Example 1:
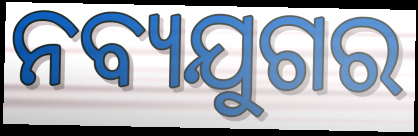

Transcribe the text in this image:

ନବ୍ୟଯୁଗର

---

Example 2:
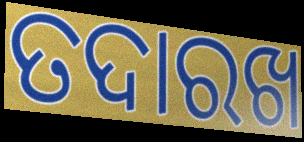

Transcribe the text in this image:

ତଦାରଖ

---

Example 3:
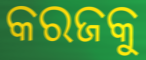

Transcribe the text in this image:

କରଜକୁ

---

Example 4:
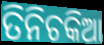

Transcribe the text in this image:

ତିନିଚକିଆ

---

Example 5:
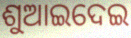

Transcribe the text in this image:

ଶୁଆଇଦେଇ